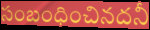
సంబంధించినదనీ